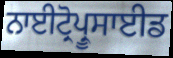
ਨਾਈਟ੍ਰੋਪ੍ਰੂਸਾਈਡ